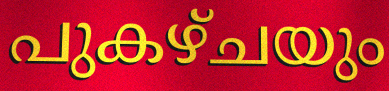
പുകഴ്ചയും